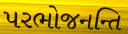
પરભોજનન્તિ